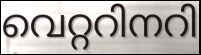
വെറ്ററിനറി